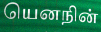
யெனநின்